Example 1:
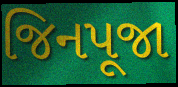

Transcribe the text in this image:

જિનપૂજા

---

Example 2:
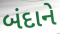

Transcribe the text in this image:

બંદાને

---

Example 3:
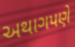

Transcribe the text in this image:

અથાગપણે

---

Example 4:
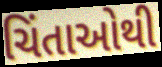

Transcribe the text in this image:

ચિંતાઓથી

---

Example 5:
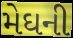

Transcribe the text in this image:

મેઘની